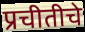
प्रचीतीचे